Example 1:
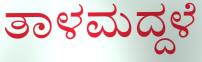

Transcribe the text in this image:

ತಾಳಮದ್ದಳೆ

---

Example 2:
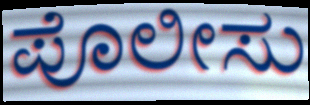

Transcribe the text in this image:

ಪೊಲೀಸು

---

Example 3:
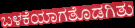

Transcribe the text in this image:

ಬಳಕೆಯಾಗತೊಡಗಿತು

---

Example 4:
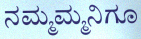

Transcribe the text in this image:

ನಮ್ಮಮ್ಮನಿಗೂ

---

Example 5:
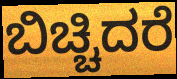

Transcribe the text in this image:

ಬಿಚ್ಚಿದರೆ